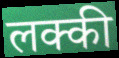
लक्की